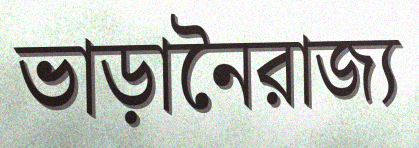
ভাড়ানৈরাজ্য